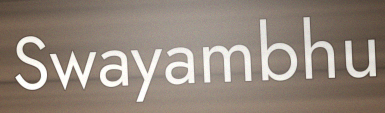
Swayambhu